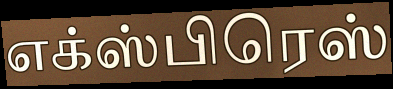
எக்ஸ்பிரெஸ்